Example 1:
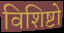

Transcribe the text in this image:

विशिष्टो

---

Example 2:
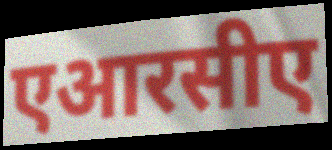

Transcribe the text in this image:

एआरसीए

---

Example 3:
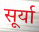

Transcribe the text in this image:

सूर्या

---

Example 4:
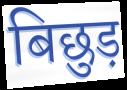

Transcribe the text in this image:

बिछुड़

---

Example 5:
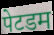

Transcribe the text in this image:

पेटडम